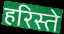
हरिस्ते